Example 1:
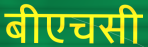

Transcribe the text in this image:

बीएचसी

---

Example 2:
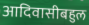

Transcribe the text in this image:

आदिवासीबहुल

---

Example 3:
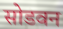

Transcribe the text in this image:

सोडवन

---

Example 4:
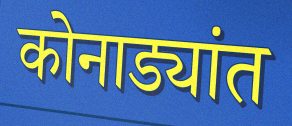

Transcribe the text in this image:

कोनाड्यांत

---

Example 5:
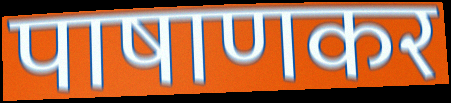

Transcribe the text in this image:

पाषाणकर